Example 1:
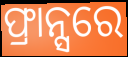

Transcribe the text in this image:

ଫ୍ରାନ୍ସରେ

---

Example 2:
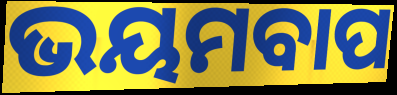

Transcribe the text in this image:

ଭୟମବାପ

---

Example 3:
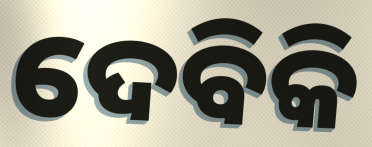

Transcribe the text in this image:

ଦେବିକି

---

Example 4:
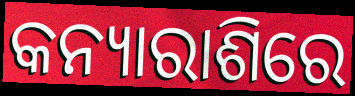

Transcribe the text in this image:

କନ୍ୟାରାଶିରେ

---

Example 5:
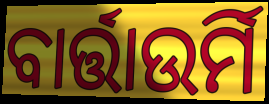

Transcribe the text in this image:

ବାର୍ତ୍ତାଉର୍ମି